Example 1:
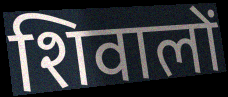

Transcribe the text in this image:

शिवालों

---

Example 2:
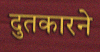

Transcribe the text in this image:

दुतकारने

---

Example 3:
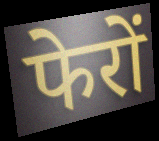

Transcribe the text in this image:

फेरों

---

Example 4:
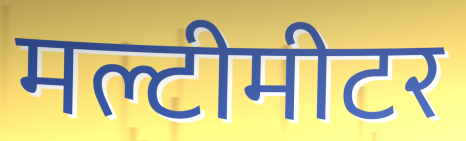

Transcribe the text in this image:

मल्टीमीटर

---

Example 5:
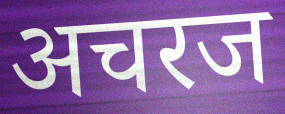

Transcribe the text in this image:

अचरज